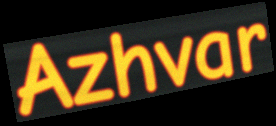
Azhvar